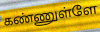
கண்ணுள்ளே